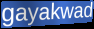
gayakwad